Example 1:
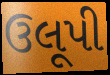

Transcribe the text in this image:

ઉલૂપી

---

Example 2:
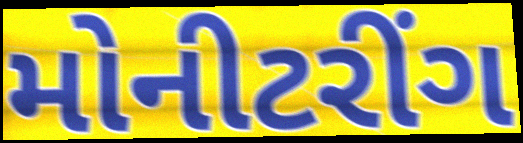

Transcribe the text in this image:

મોનીટરીંગ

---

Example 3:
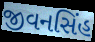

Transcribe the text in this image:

જીવનસિંહ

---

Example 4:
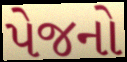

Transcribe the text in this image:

પેજનો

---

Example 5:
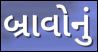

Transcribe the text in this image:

બ્રાવોનું